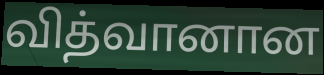
வித்வானான